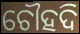
ଚୌହଦି